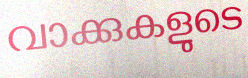
വാക്കുകളുടെ